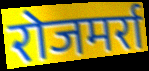
रोजमर्रा